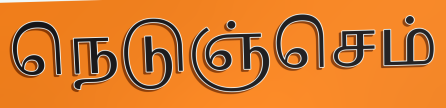
நெடுஞ்செம்